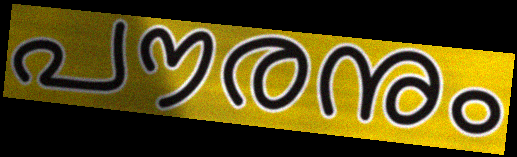
പൗരനും